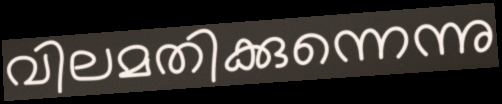
വിലമതിക്കുന്നെന്നു